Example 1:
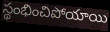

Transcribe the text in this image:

స్థంభించిపోయాయి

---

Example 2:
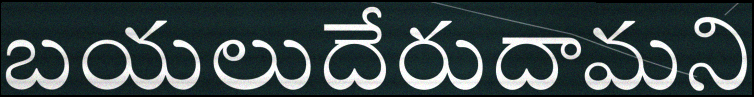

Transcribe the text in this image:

బయలుదేరుదామని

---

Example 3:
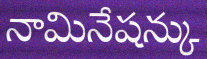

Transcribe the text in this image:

నామినేషన్కు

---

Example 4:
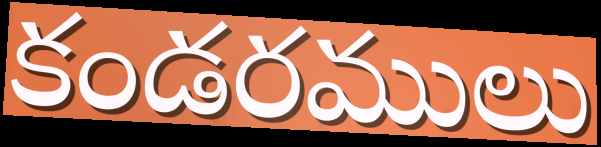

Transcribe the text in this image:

కండరములు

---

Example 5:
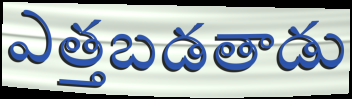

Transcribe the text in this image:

ఎత్తబడతాడు